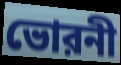
ভোরনী